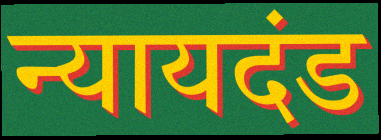
न्यायदंड